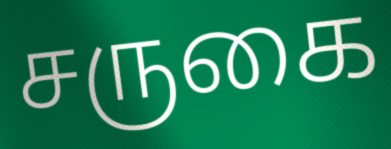
சருகை